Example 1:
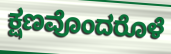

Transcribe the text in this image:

ಕ್ಷಣವೊಂದರೊಳೆ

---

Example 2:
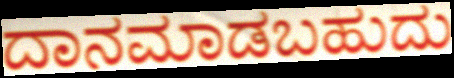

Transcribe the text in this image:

ದಾನಮಾಡಬಹುದು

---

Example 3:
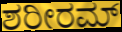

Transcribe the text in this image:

ಶರೀರಮ್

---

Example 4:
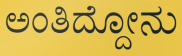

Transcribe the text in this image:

ಅಂತಿದ್ದೋನು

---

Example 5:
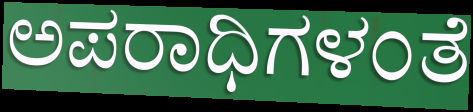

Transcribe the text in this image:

ಅಪರಾಧಿಗಳಂತೆ